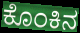
ಕೊಂಕಿನ